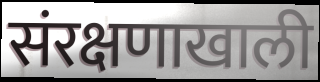
संरक्षणाखाली